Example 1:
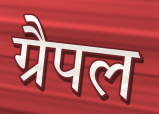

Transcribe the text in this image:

ग्रैपल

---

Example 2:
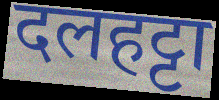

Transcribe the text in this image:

दलहट्टा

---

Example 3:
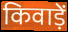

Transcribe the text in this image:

किवाड़ें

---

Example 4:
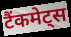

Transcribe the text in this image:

टैंकमेट्स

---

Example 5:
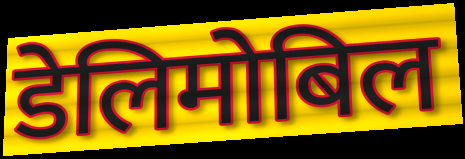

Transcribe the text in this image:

डेलिमोबिल